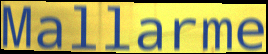
Mallarme